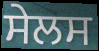
ਸੇਲਸ